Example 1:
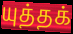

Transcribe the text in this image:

யுத்தக்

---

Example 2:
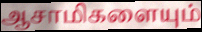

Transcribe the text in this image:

ஆசாமிகளையும்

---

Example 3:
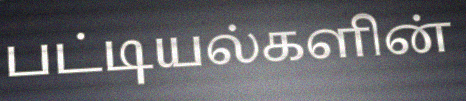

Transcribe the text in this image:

பட்டியல்களின்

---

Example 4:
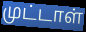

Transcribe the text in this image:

முட்டாள்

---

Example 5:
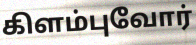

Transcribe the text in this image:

கிளம்புவோர்